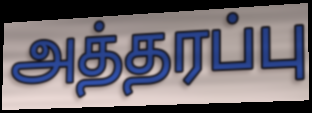
அத்தரப்பு